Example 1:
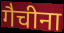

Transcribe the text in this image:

गैचीना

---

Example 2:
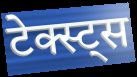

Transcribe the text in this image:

टेक्स्ट्स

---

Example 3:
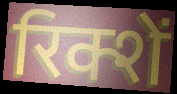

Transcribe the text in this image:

रिक्शें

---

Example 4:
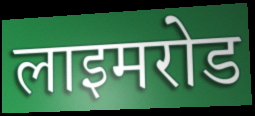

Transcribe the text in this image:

लाइमरोड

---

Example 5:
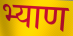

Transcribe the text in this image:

भ्याण